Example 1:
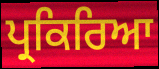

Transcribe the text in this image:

ਪ੍ਰਕਿਰਿਆ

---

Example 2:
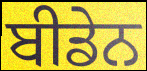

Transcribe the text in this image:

ਬੀਡੇਨ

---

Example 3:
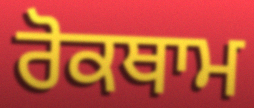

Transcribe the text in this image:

ਰੋਕਥਾਮ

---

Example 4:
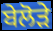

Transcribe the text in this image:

ਬੇਲੋੜੇ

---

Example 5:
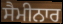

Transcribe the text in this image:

ਸੈਮੀਨਾਰ